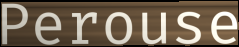
Perouse